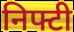
निफ्टी